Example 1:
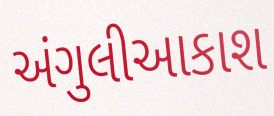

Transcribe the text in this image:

અંગુલીઆકાશ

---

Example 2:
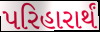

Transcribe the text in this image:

પરિહારાર્થં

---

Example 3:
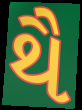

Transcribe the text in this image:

થૈ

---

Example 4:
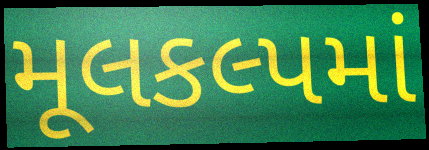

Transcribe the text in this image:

મૂલકલ્પમાં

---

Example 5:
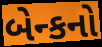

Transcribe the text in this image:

બેન્કનો